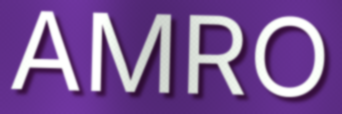
AMRO